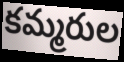
కమ్మరుల